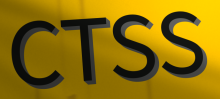
CTSS